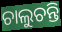
ଚାଲୁଚନ୍ତି